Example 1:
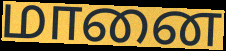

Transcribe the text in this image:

மானை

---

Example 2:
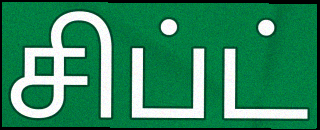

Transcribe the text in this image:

சிப்ட்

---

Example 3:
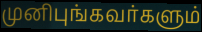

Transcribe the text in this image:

முனிபுங்கவர்களும்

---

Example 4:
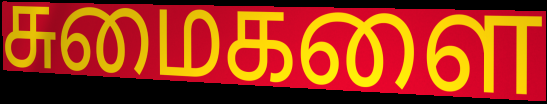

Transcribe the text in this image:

சுமைகளை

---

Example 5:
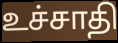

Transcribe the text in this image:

உச்சாதி